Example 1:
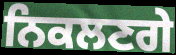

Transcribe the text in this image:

ਨਿਕਲਣਗੇ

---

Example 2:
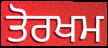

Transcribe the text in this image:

ਤੋਰਖਮ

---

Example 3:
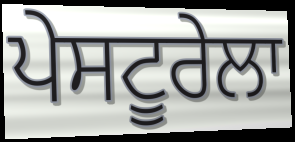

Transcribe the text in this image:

ਪੇਸਟੂਰੇਲਾ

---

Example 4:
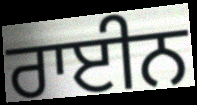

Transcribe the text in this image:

ਰਾਈਨ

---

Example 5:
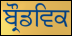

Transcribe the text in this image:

ਬ੍ਰੌਡਵਿਕ